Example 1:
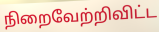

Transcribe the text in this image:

நிறைவேற்றிவிட்ட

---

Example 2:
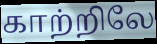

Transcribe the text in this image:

காற்றிலே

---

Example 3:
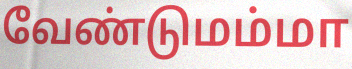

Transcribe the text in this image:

வேண்டுமம்மா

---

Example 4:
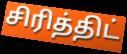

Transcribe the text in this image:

சிரித்திட்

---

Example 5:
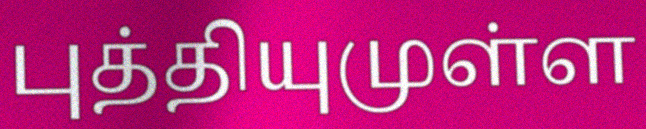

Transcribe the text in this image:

புத்தியுமுள்ள